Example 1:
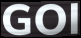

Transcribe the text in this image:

GOI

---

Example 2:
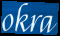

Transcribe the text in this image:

okra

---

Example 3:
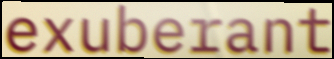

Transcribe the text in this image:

exuberant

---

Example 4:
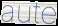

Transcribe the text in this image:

aute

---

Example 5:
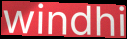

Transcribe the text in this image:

windhi